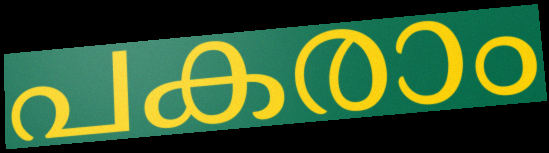
പകരാം